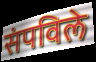
संपविले